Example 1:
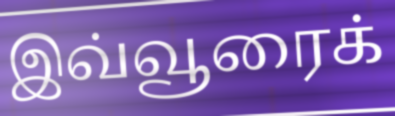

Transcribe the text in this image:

இவ்வூரைக்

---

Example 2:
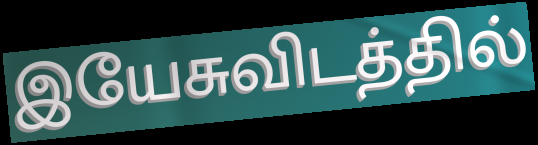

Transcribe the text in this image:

இயேசுவிடத்தில்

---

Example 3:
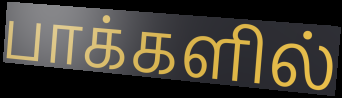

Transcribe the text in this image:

பாக்களில்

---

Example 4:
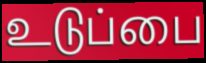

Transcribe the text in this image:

உடுப்பை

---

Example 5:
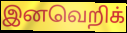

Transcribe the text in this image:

இனவெறிக்